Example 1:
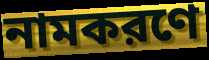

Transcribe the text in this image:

নামকরণে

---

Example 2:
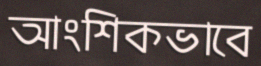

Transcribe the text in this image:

আংশিকভাবে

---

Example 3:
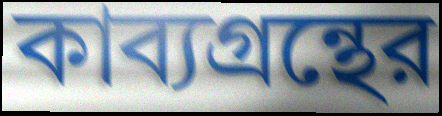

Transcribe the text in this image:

কাব্যগ্রন্থের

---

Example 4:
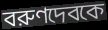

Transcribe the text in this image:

বরুণদেবকে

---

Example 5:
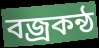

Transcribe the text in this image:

বজ্রকন্ঠ